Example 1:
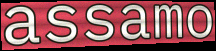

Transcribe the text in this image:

assamo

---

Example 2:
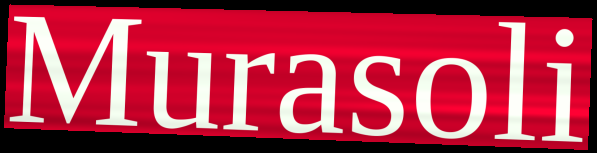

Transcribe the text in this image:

Murasoli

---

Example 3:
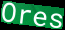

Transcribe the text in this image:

Ores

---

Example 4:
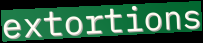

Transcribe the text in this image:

extortions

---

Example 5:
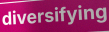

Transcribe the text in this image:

diversifying